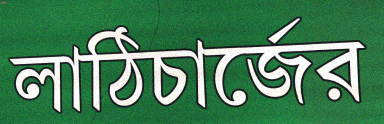
লাঠিচার্জের